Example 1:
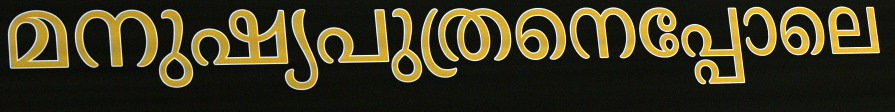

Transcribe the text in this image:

മനുഷ്യപുത്രനെപ്പോലെ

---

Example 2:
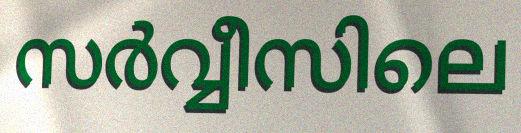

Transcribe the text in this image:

സർവ്വീസിലെ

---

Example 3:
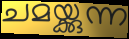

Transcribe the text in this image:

ചമയ്ക്കുന്ന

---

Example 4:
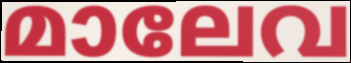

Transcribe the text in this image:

മാലേവ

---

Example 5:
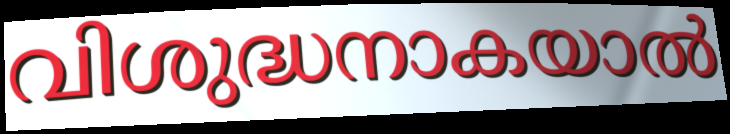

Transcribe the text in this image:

വിശുദ്ധനാകയാൽ